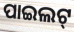
ପାଇଲଟ୍